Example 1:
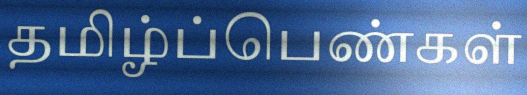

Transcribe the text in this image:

தமிழ்ப்பெண்கள்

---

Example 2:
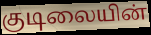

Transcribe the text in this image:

குடிலையின்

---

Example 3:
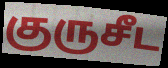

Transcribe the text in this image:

குருசீட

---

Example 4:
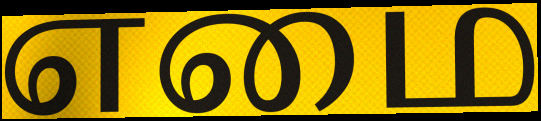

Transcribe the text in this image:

எமை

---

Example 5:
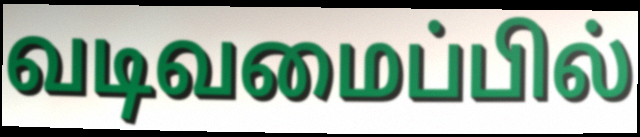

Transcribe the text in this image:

வடிவமைப்பில்